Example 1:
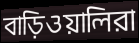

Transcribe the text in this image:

বাড়িওয়ালিরা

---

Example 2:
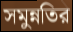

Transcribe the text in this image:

সমুন্নতির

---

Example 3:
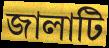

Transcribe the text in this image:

জালাটি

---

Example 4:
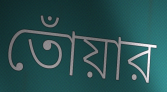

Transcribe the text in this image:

তোঁয়ার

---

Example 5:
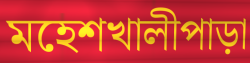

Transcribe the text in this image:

মহেশখালীপাড়া